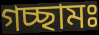
গচ্ছামঃ